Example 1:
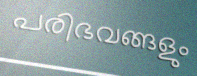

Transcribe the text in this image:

പരിഭവങ്ങളും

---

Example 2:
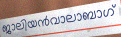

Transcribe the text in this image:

ജാലിയൻവാലാബാഗ്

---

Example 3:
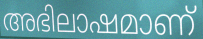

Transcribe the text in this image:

അഭിലാഷമാണ്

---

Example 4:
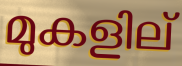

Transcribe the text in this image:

മുകളില്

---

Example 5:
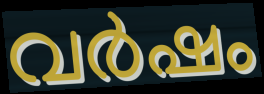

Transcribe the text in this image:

വർഷം